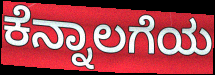
ಕೆನ್ನಾಲಗೆಯ